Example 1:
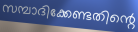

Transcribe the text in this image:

സമ്പാദിക്കേണ്ടതിന്റെ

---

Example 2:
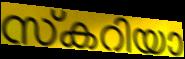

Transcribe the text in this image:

സ്‌കറിയാ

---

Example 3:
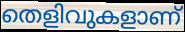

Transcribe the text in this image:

തെളിവുകളാണ്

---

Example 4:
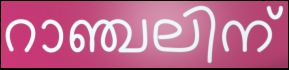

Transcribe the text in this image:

റാഞ്ചലിന്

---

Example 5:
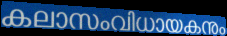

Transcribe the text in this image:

കലാസംവിധായകനും